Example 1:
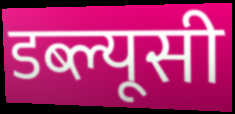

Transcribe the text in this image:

डब्ल्यूसी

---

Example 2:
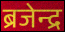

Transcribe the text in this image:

ब्रजेन्द्र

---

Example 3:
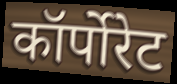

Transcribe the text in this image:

कॉर्पोरेट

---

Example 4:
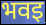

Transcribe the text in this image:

भवइ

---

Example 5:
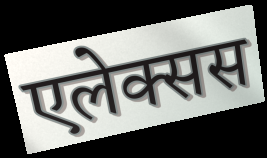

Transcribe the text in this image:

एलेक्सस